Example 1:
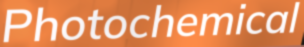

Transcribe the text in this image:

Photochemical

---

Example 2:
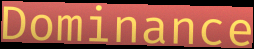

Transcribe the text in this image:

Dominance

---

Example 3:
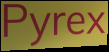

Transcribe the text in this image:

Pyrex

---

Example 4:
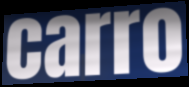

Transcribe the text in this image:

carro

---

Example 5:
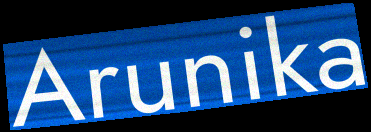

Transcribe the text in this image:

Arunika